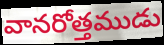
వానరోత్తముడు